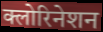
क्लोरिनेशन